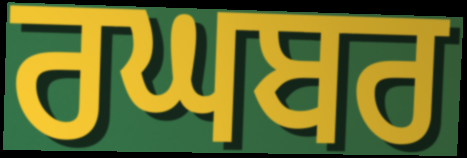
ਰਘਬਰ